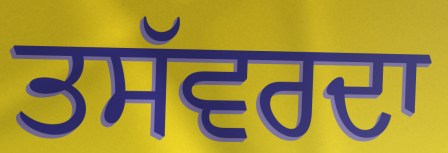
ਤਸੱਵਰਦਾ